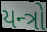
યન્ત્રો